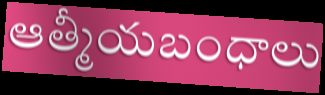
ఆత్మీయబంధాలు